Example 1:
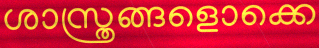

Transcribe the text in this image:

ശാസ്ത്രങ്ങളൊക്കെ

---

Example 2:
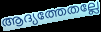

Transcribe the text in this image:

ആദ്യത്തേതല്ലേ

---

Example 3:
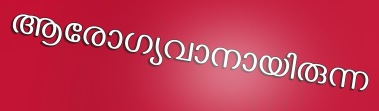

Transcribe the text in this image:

ആരോഗ്യവാനായിരുന്ന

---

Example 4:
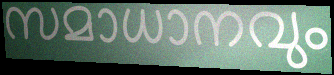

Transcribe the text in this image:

സമാധാനവും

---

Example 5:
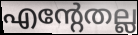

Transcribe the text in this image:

എന്റേതല്ല